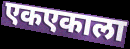
एकएकाला